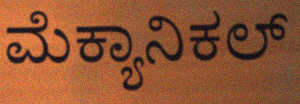
ಮೆಕ್ಯಾನಿಕಲ್